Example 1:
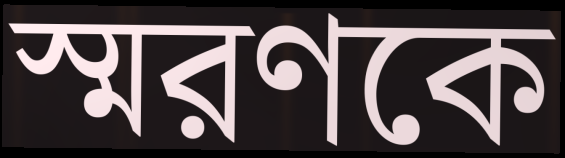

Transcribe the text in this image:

স্মরণকে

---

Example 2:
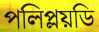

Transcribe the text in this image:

পলিপ্লয়ডি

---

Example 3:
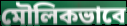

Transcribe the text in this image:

মৌলিকভাবে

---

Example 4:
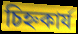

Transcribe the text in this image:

চিহ্নকার্য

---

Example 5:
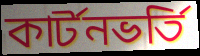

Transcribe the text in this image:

কার্টনভর্তি